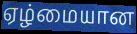
ஏழ்மையான